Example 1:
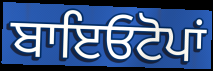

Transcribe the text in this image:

ਬਾਇਓਟੋਪਾਂ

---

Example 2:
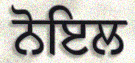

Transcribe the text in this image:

ਨੋਇਲ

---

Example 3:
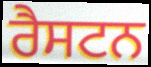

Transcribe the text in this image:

ਰੈਸਟਨ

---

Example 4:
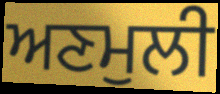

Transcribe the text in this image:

ਅਣਮੁਲੀ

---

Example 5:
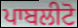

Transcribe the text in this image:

ਪਾਬਲੀਟੋ